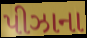
પીઝાના